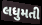
લધુમતી